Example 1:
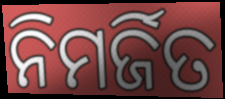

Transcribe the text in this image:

ନିମର୍ଜିତ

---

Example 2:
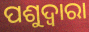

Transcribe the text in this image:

ପଶୁଦ୍ୱାରା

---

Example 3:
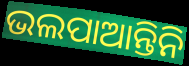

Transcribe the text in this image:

ଭଲପାଆନ୍ତିନି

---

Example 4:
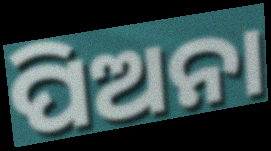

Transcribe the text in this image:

ପିଅନା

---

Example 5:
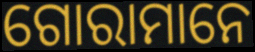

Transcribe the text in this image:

ଗୋରାମାନେ